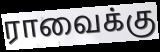
ராவைக்கு